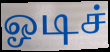
ஓடிச்